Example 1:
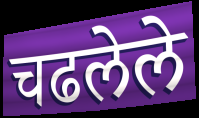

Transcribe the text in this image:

चढलेले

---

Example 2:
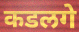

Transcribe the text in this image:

कडलगे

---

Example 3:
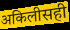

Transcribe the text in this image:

अकिलीसही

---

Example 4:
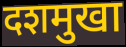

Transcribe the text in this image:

दशमुखा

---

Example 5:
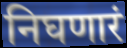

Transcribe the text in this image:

निघणारं